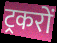
ट्रकरों